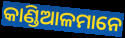
କାଣ୍ଡିଆଳମାନେ